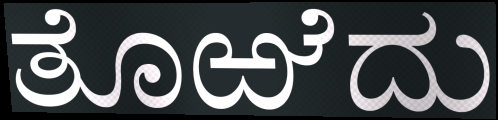
ತೊಱೆದು